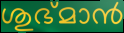
ശുഭ്മാൻ